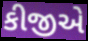
કીજીએ